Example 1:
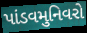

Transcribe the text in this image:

પાંડવમુનિવરો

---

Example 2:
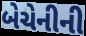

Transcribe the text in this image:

બેચેનીની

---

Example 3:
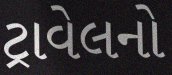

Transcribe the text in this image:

ટ્રાવેલનો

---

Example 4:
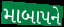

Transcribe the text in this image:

માબાપને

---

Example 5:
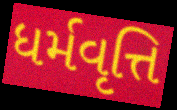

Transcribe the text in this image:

ધર્મવૃત્તિ